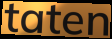
taten